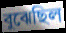
বুঝেছিল